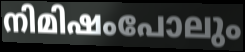
നിമിഷംപോലും